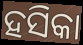
ହସିକା